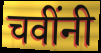
चवींनी